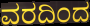
ವರದಿಂದ